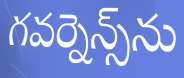
గవర్నెన్స్‌ను